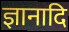
ज्ञानादि